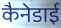
कैनेडाई